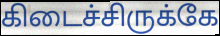
கிடைச்சிருக்கே